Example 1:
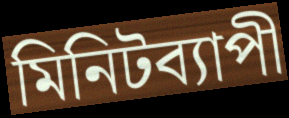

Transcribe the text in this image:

মিনিটব্যাপী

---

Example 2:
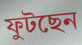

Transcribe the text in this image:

ফুটছেন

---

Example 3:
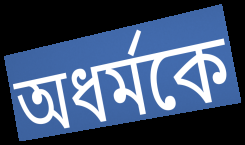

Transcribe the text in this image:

অধর্মকে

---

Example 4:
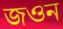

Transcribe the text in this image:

জওন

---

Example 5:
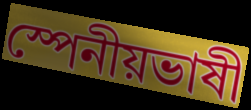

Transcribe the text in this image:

স্পেনীয়ভাষী